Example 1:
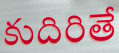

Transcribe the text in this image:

కుదిరితే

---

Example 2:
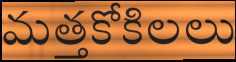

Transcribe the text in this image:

మత్తకోకిలలు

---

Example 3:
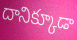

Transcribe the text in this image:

దానిక్కూడా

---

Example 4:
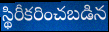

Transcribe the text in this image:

స్థిరీకరించబడిన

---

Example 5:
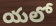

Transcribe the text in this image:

యలో